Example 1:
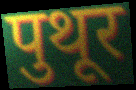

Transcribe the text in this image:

पुथूर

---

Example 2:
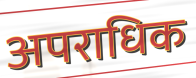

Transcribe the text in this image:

अपराधिक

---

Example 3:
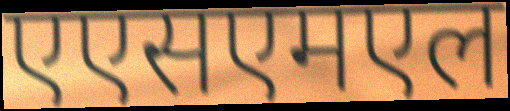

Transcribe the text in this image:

एएसएमएल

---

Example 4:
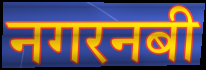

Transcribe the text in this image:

नगरनबी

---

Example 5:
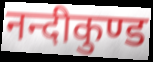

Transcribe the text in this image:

नन्दीकुण्ड